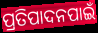
ପ୍ରତିପାଦନପାଇଁ